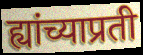
ह्यांच्याप्रती